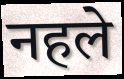
नहले